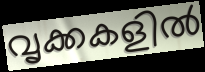
വൃക്കകളിൽ